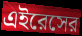
এইরেসের